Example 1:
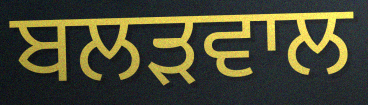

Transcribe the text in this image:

ਬਲੜਵਾਲ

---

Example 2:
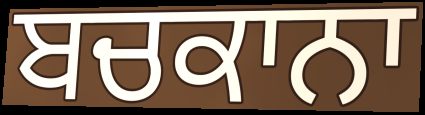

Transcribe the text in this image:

ਬਚਕਾਨਾ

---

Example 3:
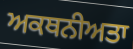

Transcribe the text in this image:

ਅਕਥਨੀਅਤਾ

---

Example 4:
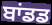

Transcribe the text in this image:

ਬਾਂਡਡ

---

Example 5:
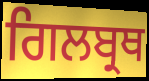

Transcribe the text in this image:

ਗਿਲਬ੍ਰਥ